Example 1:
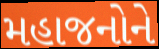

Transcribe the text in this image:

મહાજનોને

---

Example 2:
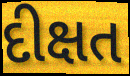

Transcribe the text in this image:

દીક્ષત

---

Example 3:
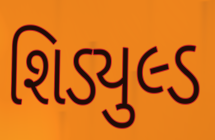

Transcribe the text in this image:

શિડ્યુલ્ડ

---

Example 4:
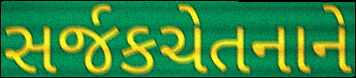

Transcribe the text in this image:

સર્જકચેતનાને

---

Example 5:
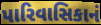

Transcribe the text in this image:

પારિવાસિકાનં